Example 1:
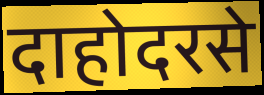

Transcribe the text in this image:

दाहोदरसे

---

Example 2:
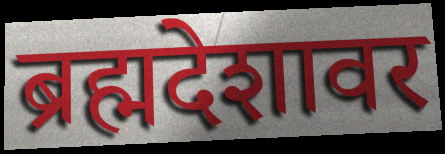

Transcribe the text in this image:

ब्रह्मदेशावर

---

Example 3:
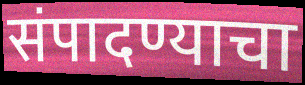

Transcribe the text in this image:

संपादण्याचा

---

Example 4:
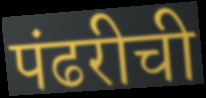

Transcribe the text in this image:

पंढरीची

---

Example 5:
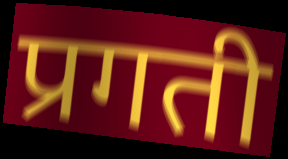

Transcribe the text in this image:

प्रगती